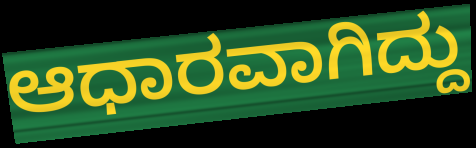
ಆಧಾರವಾಗಿದ್ದು